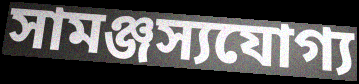
সামঞ্জস্যযোগ্য